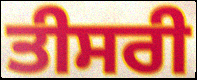
ਤੀਸਰੀ